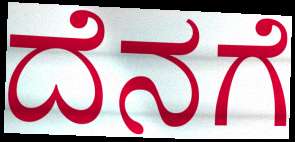
ದೆನಗೆ